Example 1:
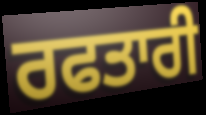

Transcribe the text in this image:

ਰਫਤਾਰੀ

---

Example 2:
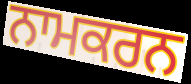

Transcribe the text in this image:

ਨਾਮਕਰਨ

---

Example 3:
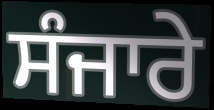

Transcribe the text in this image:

ਸੰਜਾਰੇ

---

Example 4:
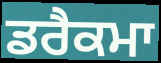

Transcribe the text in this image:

ਡਰੈਕਮਾ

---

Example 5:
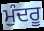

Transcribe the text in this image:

ਮੁੰਦਰੂ